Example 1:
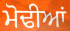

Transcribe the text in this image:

ਮੋਢੀਆਂ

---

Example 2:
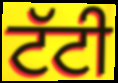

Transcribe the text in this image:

ਟੱਟੀ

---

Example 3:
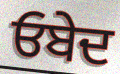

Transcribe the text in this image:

ਓਬੇਦ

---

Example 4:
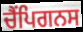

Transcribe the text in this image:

ਚੈਂਪਿਗਨਸ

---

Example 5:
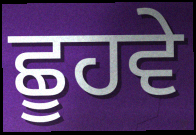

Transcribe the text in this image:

ਛੂਹਵੇ